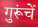
गुरूंचें